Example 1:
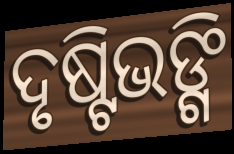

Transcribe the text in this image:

ଦୃଷ୍ଟିଭଙ୍ଗି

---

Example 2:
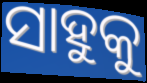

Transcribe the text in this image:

ସାହୁକୁ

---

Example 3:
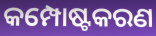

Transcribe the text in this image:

କମ୍ପୋଷ୍ଟକରଣ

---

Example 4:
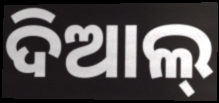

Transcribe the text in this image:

ଦିଆଲ୍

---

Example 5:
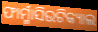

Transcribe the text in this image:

ଫାର୍ମ୍ମାସିଉଟିକ୍ୟାଲ